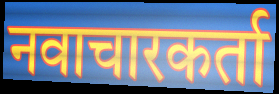
नवाचारकर्ता